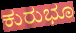
ಕುರುಭೂ